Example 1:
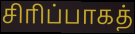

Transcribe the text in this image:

சிரிப்பாகத்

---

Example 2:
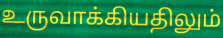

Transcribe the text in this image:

உருவாக்கியதிலும்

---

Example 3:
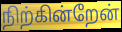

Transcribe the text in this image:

நிற்கின்றேன்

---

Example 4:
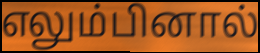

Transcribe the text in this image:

எலும்பினால்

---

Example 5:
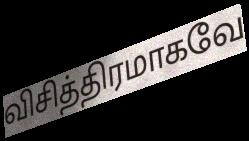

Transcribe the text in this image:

விசித்திரமாகவே